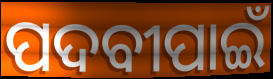
ପଦବୀପାଇଁ